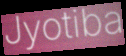
Jyotiba